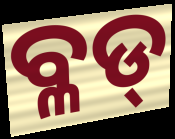
ବ୍ଳଡ୍